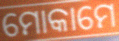
ମୋକାମେ